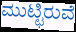
ಮುಟ್ಟಿರುವೆ